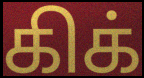
கிக்